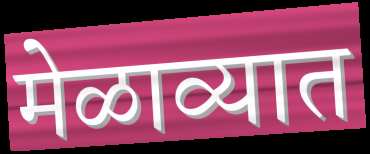
मेळाव्यात